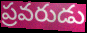
ప్రవరుడు